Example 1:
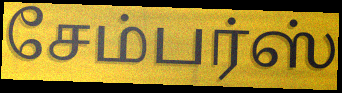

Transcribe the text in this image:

சேம்பர்ஸ்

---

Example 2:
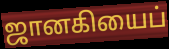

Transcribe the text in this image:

ஜானகியைப்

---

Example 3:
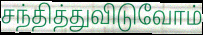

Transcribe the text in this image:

சந்தித்துவிடுவோம்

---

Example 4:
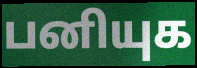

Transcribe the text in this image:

பனியுக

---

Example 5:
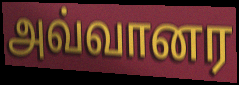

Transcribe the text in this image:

அவ்வானர